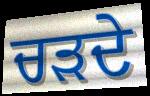
ਚੜਦੇ